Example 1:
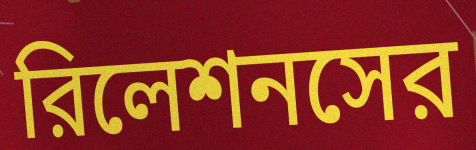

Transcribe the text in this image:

রিলেশনসের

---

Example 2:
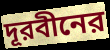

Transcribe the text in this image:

দূরবীনের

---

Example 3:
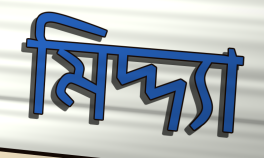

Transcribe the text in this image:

মিদ্দ্যা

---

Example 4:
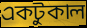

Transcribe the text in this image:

একটুকাল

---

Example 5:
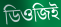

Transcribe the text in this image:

ডিওজিই